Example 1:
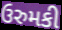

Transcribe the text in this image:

ઉરુમકી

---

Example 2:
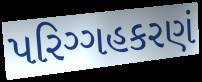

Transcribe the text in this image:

પરિગ્ગહકરણં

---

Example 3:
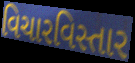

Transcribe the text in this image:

વિચારવિસ્તાર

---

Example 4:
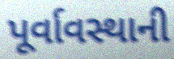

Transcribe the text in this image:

પૂર્વાવસ્થાની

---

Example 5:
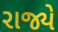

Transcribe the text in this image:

રાજ્યે